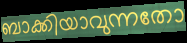
ബാക്കിയാവുന്നതോ